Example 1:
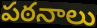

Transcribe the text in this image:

పఠనాలు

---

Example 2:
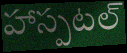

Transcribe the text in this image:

హాస్పటల్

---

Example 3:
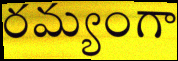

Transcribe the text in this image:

రమ్యంగా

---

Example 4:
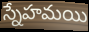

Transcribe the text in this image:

స్నేహమయి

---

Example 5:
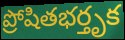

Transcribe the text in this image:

ప్రోషితభర్తృక